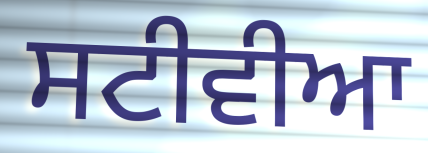
ਸਟੀਵੀਆ